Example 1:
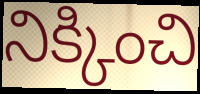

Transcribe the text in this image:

నిక్కించి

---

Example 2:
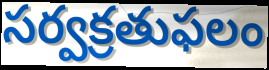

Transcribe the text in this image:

సర్వక్రతుఫలం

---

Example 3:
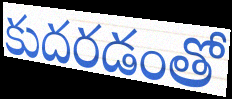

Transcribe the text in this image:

కుదరడంతో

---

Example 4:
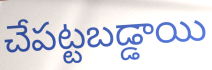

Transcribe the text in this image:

చేపట్టబడ్డాయి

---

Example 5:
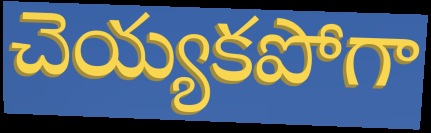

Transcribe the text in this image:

చెయ్యకపోగా